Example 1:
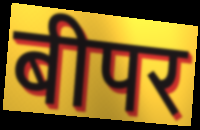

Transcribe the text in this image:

बीपर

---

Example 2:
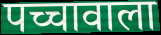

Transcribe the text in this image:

पच्चावाला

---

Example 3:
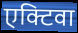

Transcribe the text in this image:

एक्टिवा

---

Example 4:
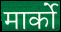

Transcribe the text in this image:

मार्को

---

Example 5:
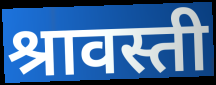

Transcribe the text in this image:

श्रावस्ती